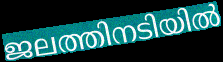
ജലത്തിനടിയിൽ